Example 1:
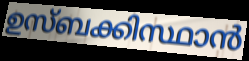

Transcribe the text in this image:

ഉസ്ബക്കിസ്ഥാൻ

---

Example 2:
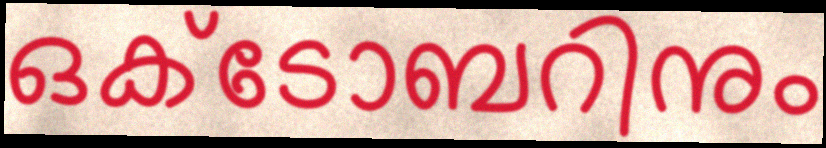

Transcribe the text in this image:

ഒക്ടോബറിനും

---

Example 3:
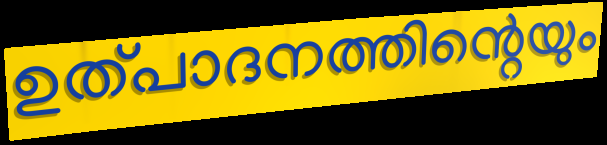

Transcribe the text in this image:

ഉത്പാദനത്തിന്റെയും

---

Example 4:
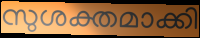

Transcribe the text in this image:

സുശക്തമാക്കി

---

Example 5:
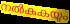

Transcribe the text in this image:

നൽകുകയും